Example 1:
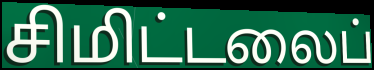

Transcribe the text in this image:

சிமிட்டலைப்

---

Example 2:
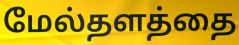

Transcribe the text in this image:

மேல்தளத்தை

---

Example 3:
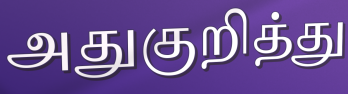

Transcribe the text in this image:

அதுகுறித்து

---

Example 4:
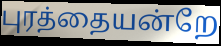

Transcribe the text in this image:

புரத்தையன்றே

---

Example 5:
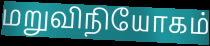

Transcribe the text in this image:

மறுவிநியோகம்